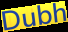
Dubh